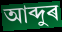
আব্দুৰ